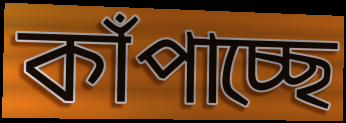
কাঁপাচ্ছে